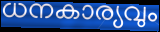
ധനകാര്യവും